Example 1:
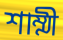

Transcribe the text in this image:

শাম্মী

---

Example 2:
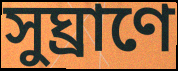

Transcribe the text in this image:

সুঘ্রাণে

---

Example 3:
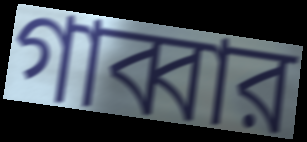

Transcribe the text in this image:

গাব্বার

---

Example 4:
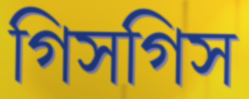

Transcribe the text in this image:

গিসগিস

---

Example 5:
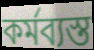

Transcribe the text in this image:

কর্মব্যস্ত